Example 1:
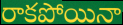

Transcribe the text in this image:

రాకపోయినా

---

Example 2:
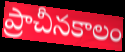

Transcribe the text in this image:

ప్రాచీనకాలం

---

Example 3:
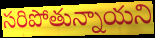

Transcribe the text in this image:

సరిపోతున్నాయని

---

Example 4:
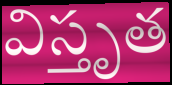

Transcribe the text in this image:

విస్తృత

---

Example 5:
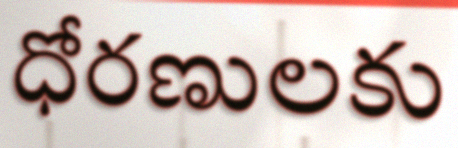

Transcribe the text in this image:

ధోరణులకు